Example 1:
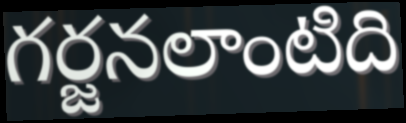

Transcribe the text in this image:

గర్జనలాంటిది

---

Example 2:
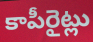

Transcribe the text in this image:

కాపీరైట్లు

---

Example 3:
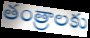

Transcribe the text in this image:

తంత్రాలకు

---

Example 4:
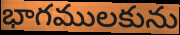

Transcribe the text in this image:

భాగములకును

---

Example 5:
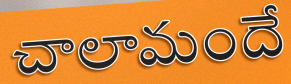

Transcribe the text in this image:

చాలామందే